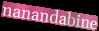
nanandabine